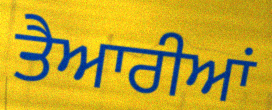
ਤੈਆਰੀਆਂ